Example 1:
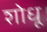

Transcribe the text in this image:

शोधू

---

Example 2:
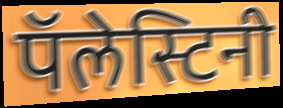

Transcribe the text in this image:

पॅलेस्टिनी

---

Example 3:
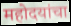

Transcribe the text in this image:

महोदयांचा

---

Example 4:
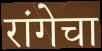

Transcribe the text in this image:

रांगेचा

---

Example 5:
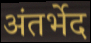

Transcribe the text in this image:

अंतर्भेद